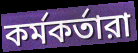
কর্মকর্তারা